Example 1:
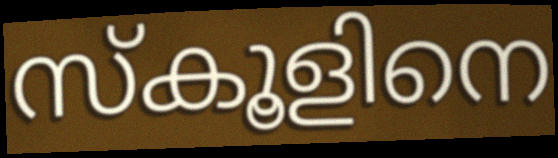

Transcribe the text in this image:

സ്കൂളിനെ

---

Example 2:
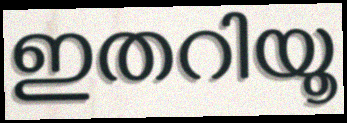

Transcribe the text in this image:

ഇതറിയൂ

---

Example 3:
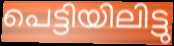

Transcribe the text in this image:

പെട്ടിയിലിട്ടു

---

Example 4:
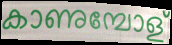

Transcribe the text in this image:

കാണുമ്പോള്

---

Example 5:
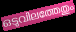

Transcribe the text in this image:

ഒടുവിലത്തേതും